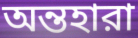
অন্তহারা